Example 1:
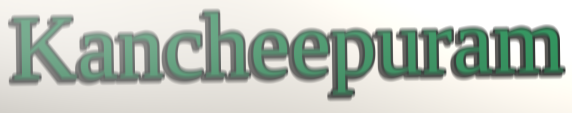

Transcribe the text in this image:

Kancheepuram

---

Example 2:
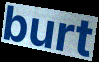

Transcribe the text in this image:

burt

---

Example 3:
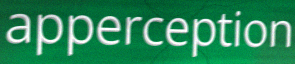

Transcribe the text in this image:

apperception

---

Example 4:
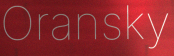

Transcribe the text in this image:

Oransky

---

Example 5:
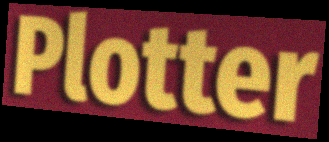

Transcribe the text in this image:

Plotter